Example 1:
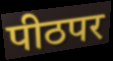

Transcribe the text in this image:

पीठपर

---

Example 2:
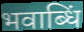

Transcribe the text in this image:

भवाब्धिं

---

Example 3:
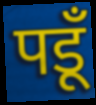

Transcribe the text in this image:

पडूँ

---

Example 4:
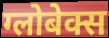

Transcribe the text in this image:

ग्लोबेक्स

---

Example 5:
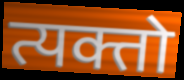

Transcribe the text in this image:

त्यक्तो